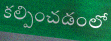
కల్పించడంలో